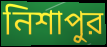
নিশাপুর